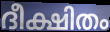
ദീക്ഷിതം